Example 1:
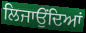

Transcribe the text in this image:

ਲਿਜਾਉਂਦਿਆਂ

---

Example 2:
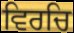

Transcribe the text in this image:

ਵਿਰਚਿ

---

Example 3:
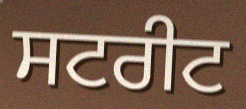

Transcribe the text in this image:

ਸਟਰੀਟ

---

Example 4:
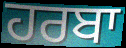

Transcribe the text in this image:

ਹਰਬਾ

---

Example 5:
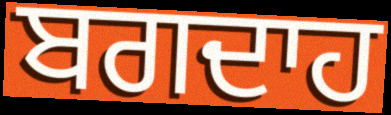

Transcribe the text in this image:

ਬਗਦਾਹ